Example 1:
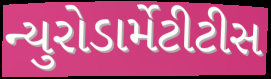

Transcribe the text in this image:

ન્યુરોડાર્મેટીટીસ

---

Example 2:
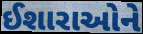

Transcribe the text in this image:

ઈશારાઓને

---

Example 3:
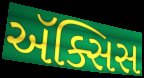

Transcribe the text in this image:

ઍક્સિસ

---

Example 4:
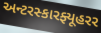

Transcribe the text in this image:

અન્ટરસ્કારફ્યૂહરર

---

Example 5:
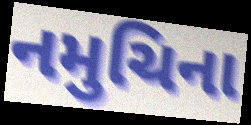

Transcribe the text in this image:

નમુચિના